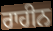
ਰਾਹੀਨ